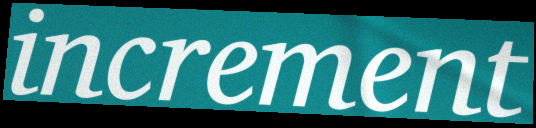
increment